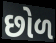
છોળ